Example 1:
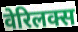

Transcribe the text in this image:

वेरिलक्स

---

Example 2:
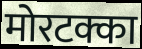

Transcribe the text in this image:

मोरटक्का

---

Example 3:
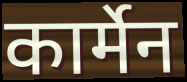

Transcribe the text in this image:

कार्मेन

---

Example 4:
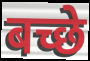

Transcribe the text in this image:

बच्छे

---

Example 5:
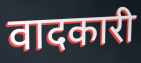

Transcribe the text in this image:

वादकारी